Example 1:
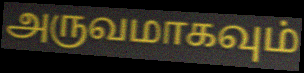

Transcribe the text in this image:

அருவமாகவும்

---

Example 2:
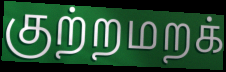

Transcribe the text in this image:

குற்றமறக்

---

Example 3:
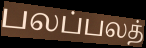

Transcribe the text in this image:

பலப்பலத்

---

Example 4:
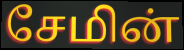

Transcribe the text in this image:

சேமின்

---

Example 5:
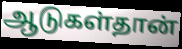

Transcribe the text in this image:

ஆடுகள்தான்